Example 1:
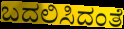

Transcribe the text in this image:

ಬದಲಿಸಿದಂತೆ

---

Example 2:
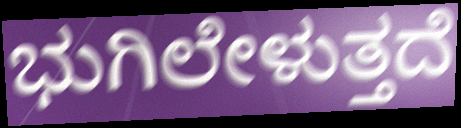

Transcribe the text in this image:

ಭುಗಿಲೇಳುತ್ತದೆ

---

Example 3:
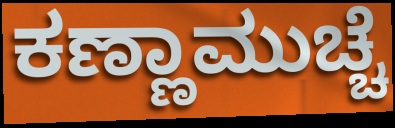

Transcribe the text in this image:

ಕಣ್ಣಾಮುಚ್ಚೆ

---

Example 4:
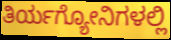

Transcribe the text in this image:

ತಿರ್ಯಗ್ಯೋನಿಗಳಲ್ಲಿ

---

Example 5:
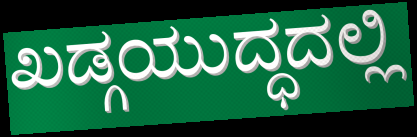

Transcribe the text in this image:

ಖಡ್ಗಯುದ್ಧದಲ್ಲಿ